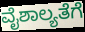
ವೈಶಾಲ್ಯತೆಗೆ